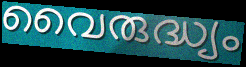
വൈരുദ്ധ്യം